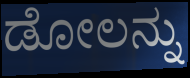
ಡೋಲನ್ನು